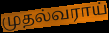
முதல்வராய்